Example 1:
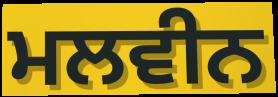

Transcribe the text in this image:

ਮਲਵੀਨ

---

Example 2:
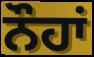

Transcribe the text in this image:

ਨੌਹਾਂ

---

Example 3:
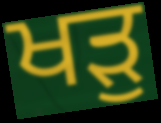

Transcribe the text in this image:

ਖੜੁ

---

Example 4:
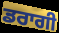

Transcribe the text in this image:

ਡਰਾਗੀ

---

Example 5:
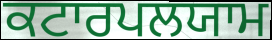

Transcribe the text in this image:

ਕਟਾਰਪਲਯਾਮ